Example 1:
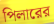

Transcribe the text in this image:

পিলারের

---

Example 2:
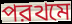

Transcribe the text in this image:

পরথমে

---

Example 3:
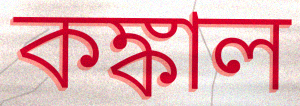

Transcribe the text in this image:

কঙ্কাল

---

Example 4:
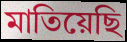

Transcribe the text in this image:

মাতিয়েছি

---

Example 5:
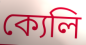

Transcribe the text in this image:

ক্যেলি